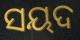
ସୟଦ